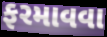
ફરમાવવા